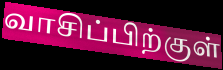
வாசிப்பிற்குள்